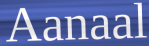
Aanaal